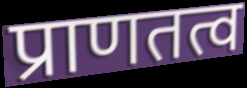
प्राणतत्व